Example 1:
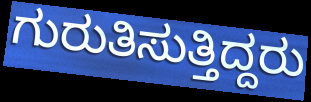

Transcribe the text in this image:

ಗುರುತಿಸುತ್ತಿದ್ದರು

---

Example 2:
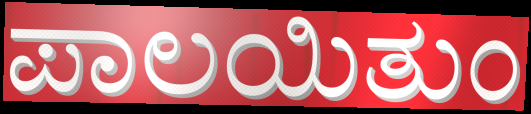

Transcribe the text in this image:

ಪಾಲಯಿತುಂ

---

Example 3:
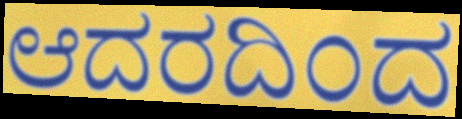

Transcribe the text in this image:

ಆದರದಿಂದ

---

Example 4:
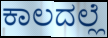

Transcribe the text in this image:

ಕಾಲದಲ್ಲೆ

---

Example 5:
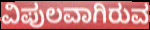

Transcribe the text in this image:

ವಿಪುಲವಾಗಿರುವ